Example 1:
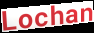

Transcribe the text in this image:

Lochan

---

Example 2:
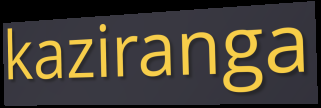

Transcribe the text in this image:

kaziranga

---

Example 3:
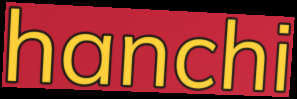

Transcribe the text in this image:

hanchi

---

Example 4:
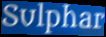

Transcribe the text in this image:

Sulphar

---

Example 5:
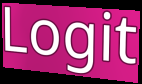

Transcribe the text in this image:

Logit